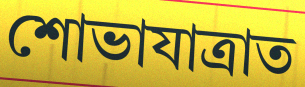
শোভাযাত্ৰাত